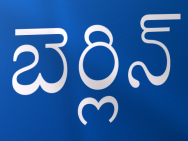
బెర్లిన్